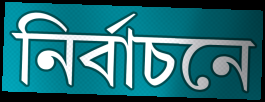
নিৰ্বাচনে